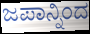
ಜಪಾನ್ನಿಂದ